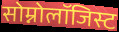
सोम्नोलॉजिस्ट